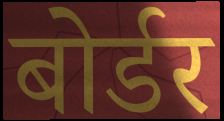
बोर्डर